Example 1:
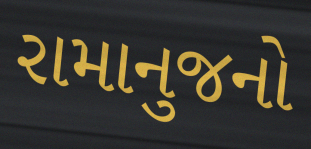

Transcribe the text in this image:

રામાનુજનો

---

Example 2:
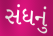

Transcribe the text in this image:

સંધનું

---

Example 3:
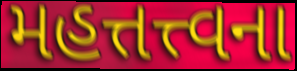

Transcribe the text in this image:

મહત્તત્ત્વના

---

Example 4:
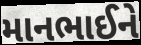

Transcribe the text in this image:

માનભાઈને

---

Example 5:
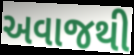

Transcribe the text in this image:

અવાજથી